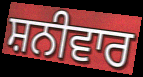
ਸ਼ਨੀਵਾਰ